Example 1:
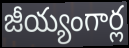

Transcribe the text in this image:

జీయ్యంగార్ల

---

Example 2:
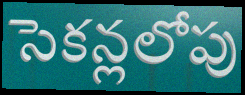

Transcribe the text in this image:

సెకన్లలోపు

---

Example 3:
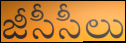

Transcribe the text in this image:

జీసీసీలు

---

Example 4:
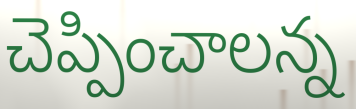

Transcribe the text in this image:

చెప్పించాలన్న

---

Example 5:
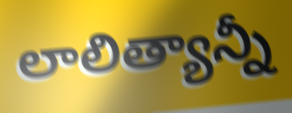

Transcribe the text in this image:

లాలిత్యాన్నీ